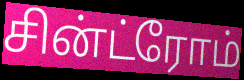
சின்ட்ரோம்